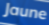
Jaune